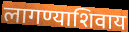
लागण्याशिवाय